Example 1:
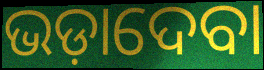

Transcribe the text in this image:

ଭଡ଼ାଦେବା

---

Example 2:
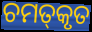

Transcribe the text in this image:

ଚମତ୍‌କୃତ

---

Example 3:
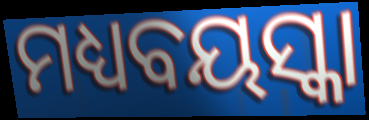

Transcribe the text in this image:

ମଧ୍ୟବୟସ୍କା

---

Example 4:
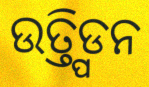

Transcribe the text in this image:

ଉତ୍ତ୍ପିଡନ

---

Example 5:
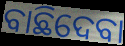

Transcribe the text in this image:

ବାଛିଦେବା